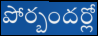
పోర్బందర్లో